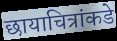
छायाचित्रांकडे